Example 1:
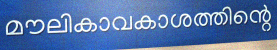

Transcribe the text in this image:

മൗലികാവകാശത്തിന്റെ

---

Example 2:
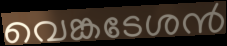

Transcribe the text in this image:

വെങ്കടേശൻ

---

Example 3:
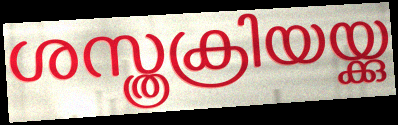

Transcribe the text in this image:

ശസ്ത്രക്രിയയ്ക്കു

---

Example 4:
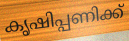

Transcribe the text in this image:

കൃഷിപ്പണിക്ക്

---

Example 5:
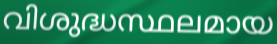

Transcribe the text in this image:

വിശുദ്ധസ്ഥലമായ